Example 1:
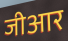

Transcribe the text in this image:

जीआर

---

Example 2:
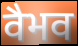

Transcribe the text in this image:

वैभव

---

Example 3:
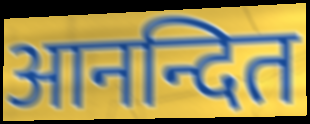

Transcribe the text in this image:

आनन्दित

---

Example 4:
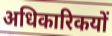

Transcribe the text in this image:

अधिकारिकयों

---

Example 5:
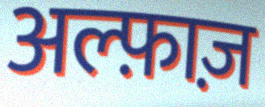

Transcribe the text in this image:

अल्फ़ाज़